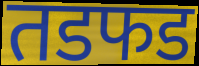
तडफड